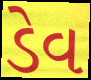
ડેવ